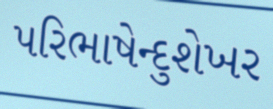
પરિભાષેન્દુશેખર